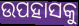
ଉପହାସକୁ